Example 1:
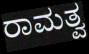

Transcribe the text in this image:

ರಾಮತ್ವ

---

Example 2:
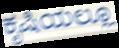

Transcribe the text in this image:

ಕೃಷಿಯಲ್ಲೂ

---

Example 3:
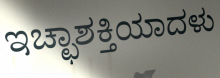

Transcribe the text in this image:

ಇಚ್ಛಾಶಕ್ತಿಯಾದಳು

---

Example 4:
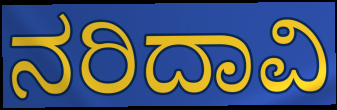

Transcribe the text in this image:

ನರಿದಾವಿ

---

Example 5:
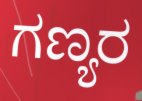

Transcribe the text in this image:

ಗಣ್ಯರ